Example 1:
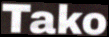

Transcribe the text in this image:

Tako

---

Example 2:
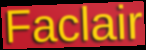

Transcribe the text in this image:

Faclair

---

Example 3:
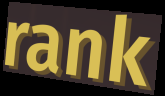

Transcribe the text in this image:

rank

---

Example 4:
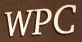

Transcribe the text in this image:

WPC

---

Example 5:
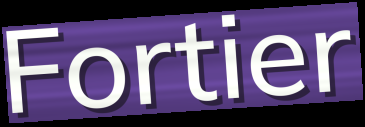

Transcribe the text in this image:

Fortier